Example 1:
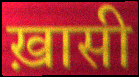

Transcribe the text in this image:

ख़ासी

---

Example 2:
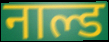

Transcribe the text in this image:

नाल्ड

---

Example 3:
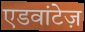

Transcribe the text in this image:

एडवांटेज़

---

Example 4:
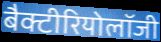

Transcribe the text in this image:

बैक्टीरियोलॉजी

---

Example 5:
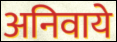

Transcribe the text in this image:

अनिवाये